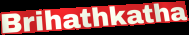
Brihathkatha